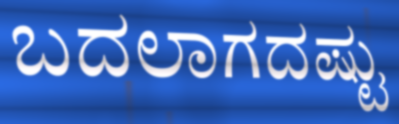
ಬದಲಾಗದಷ್ಟು